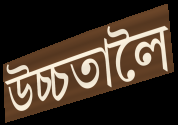
উচ্চতালৈ